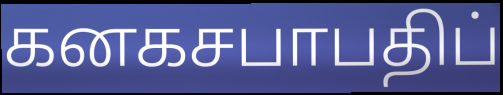
கனகசபாபதிப்